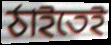
ঠাইতেই